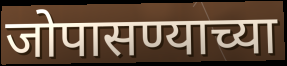
जोपासण्याच्या